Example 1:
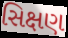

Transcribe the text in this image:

સિક્ષણ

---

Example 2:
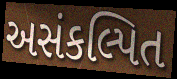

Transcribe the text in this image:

અસંકલ્પિત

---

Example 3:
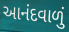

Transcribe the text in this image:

આનંદવાળું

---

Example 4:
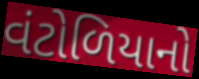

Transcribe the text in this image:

વંટોળિયાનો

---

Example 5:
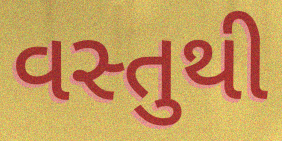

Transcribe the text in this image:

વસ્તુથી